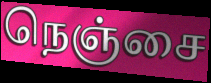
நெஞ்சை